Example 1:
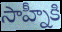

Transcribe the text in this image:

సాహ్నీకి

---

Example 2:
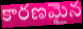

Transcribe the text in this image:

కారణమైన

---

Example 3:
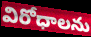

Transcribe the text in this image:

విరోధాలను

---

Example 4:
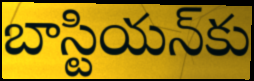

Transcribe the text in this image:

బాస్టియన్‌కు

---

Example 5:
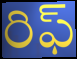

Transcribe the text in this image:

రిఫ్